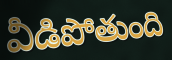
వీడిపోతుంది